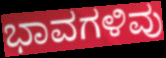
ಭಾವಗಳಿವು